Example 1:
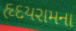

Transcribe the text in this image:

હૃદયરામના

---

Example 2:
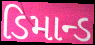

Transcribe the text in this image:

ડિમાન્ડ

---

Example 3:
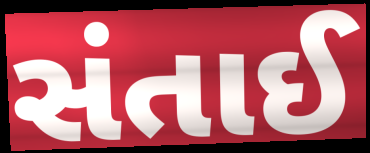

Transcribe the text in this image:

સંતાઈ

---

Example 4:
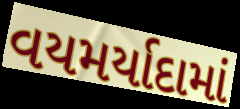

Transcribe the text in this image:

વયમર્યાદામાં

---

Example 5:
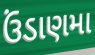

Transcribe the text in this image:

ઉંડાણમા